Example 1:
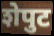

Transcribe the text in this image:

शेपुट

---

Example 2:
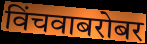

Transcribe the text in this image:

विंचवाबरोबर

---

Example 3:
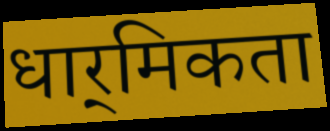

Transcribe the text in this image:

धार्मिकता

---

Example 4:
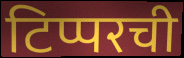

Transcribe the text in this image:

टिप्परची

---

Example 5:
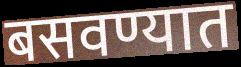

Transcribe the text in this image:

बसवण्यात